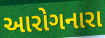
આરોગનારા